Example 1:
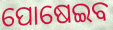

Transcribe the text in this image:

ପୋଷେଇବ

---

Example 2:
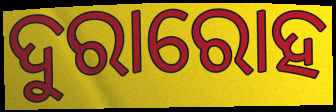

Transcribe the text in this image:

ଦୁରାରୋହ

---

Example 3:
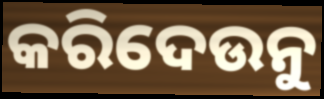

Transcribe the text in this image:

କରିଦେଉନୁ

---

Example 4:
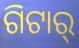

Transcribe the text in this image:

ଗିଟାର୍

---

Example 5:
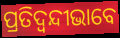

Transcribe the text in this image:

ପ୍ରତିଦ୍ୱନ୍ଦୀଭାବେ